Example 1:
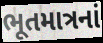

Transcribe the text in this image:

ભૂતમાત્રનાં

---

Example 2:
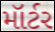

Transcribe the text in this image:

મૉર્ટર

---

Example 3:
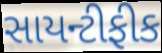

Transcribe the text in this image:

સાયન્ટીફીક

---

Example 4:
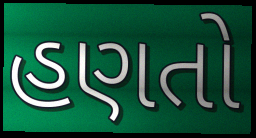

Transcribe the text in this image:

હણતો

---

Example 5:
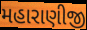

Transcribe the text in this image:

મહારાણીજી